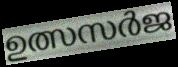
ഉത്സസർജ